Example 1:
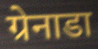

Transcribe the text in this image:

ग्रेनाडा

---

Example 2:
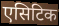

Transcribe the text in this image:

एसिटिक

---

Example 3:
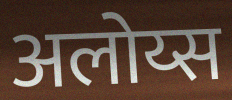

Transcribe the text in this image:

अलोय्स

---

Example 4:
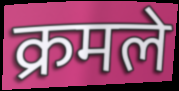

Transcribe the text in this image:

क्रमले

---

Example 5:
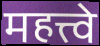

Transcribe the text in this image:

महत्त्वे